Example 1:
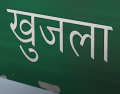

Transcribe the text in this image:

खुजला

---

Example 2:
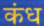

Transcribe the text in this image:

कंध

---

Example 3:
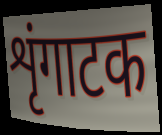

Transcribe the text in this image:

शृंगाटक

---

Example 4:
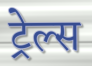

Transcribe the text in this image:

ट्रेल्स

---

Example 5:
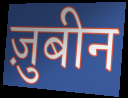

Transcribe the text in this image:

ज़ुबीन